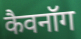
कैवनॉग